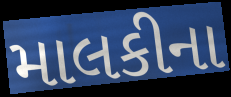
માલકીના